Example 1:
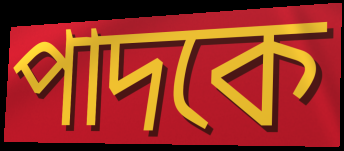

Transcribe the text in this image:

পাদকে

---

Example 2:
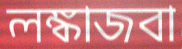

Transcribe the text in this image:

লঙ্কাজবা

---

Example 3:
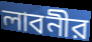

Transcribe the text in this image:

লাবনীর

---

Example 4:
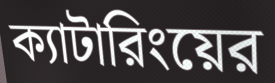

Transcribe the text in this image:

ক্যাটারিংয়ের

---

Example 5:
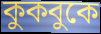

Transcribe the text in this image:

কুকবুকে